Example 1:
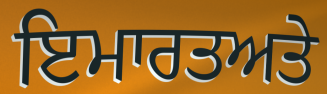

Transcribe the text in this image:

ਇਮਾਰਤਅਤੇ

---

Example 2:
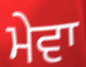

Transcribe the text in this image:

ਮੇਵਾ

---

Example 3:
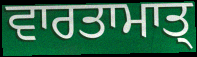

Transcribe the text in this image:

ਵਾਰਤਾਮਾਤ੍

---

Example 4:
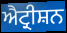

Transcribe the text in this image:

ਐਟ੍ਰੀਸ਼ਨ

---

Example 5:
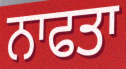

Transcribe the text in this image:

ਨਾਫਤਾ